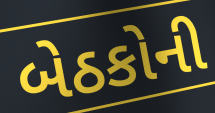
બેઠકોની